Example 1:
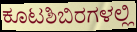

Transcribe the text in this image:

ಕೂಟಶಿಬಿರಗಳಲ್ಲಿ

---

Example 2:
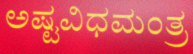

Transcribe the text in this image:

ಅಷ್ಟವಿಧಮಂತ್ರ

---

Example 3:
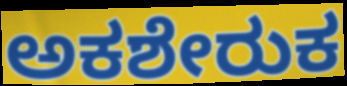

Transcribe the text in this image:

ಅಕಶೇರುಕ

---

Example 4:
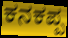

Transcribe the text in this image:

ಕನಕಪ್ಪ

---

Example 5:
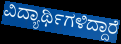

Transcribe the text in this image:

ವಿದ್ಯಾರ್ಥಿಗಳಿದ್ದಾರೆ